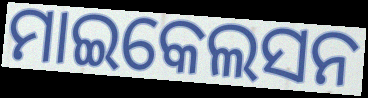
ମାଇକେଲସନ